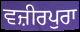
ਵਜ਼ੀਰਪੁਰਾ